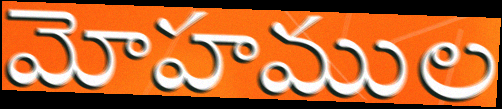
మోహముల